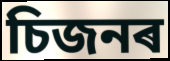
চিজনৰ